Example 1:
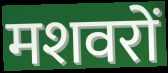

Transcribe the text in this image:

मशवरों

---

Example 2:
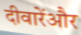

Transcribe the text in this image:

दीवारेंऔर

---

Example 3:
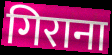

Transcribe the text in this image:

गिराना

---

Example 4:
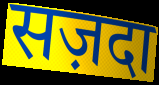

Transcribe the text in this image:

सज़दा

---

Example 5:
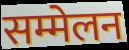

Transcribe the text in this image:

सम्‍मेलन